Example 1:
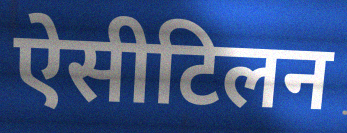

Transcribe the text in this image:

ऐसीटिलन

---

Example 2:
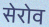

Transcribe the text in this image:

सेरोव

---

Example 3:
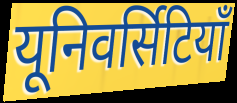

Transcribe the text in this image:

यूनिवर्सिटियाँ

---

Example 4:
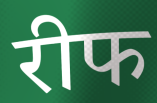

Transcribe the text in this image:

रीफ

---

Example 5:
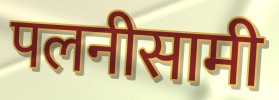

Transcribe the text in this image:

पलनीसामी